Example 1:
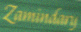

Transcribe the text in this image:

Zamindary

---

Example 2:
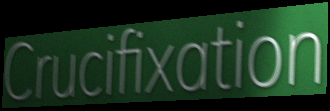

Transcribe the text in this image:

Crucifixation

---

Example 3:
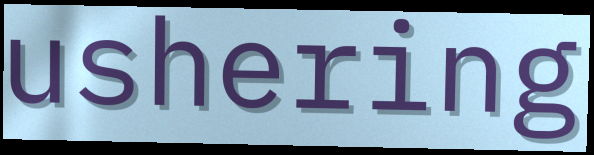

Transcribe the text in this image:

ushering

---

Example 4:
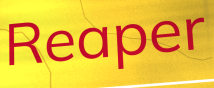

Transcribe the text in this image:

Reaper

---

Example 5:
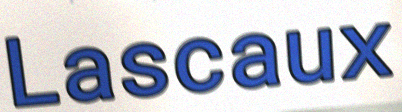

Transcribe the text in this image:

Lascaux